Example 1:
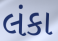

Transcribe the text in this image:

લંકા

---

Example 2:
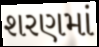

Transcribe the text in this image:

શરણમાં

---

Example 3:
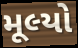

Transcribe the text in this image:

મૂલ્યો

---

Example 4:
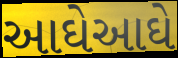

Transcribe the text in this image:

આઘેઆઘે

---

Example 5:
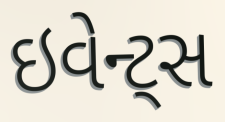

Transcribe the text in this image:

ઇવેન્ટ્સ